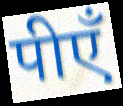
पीएँ